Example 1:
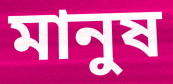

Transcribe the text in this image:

মানুষ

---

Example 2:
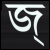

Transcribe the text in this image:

জ্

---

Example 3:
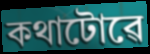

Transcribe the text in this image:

কথাটোৱে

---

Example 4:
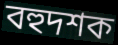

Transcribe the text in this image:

বহুদশক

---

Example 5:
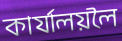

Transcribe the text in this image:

কাৰ্যালয়লৈ